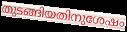
തുടങ്ങിയതിനുശേഷം